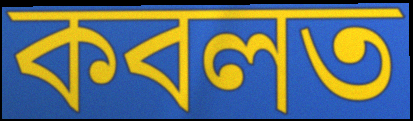
কবলত